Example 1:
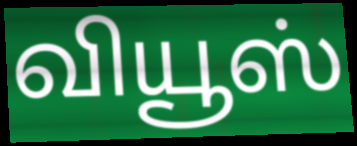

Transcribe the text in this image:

வியூஸ்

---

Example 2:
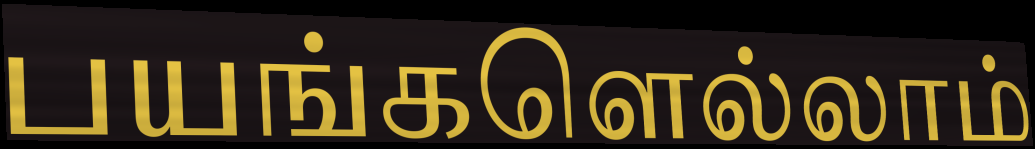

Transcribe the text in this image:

பயங்களெல்லாம்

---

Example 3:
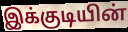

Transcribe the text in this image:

இக்குடியின்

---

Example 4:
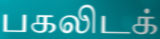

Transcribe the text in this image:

பகலிடக்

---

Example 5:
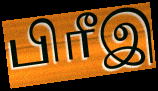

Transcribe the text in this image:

பிரீஇ